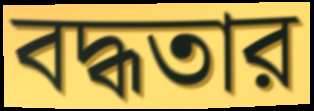
বদ্ধতার